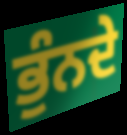
ਭੁੰਨਦੇ